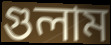
গুলাম